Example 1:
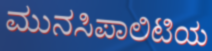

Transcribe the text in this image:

ಮುನಸಿಪಾಲಿಟಿಯ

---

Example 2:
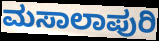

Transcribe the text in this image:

ಮಸಾಲಾಪುರಿ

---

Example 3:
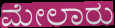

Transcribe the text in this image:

ಮೇಲಾರು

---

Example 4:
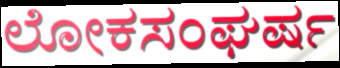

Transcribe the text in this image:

ಲೋಕಸಂಘರ್ಷ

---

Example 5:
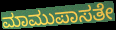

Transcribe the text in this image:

ಮಾಮುಪಾಸತೇ